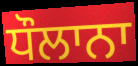
ਧੌਲਾਨਾ